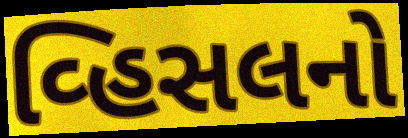
વ્હિસલનો